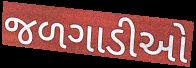
જળગાડીઓ